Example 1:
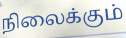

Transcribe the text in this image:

நிலைக்கும்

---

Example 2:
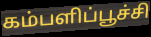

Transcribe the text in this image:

கம்பளிப்பூச்சி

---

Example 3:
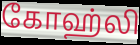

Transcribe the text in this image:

கோஹ்லி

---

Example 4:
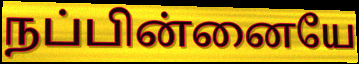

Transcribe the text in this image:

நப்பின்னையே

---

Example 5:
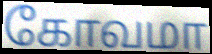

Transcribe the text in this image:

கோவமா